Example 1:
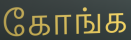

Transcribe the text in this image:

கோங்க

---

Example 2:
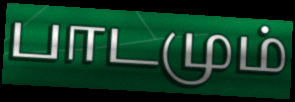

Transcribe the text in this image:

பாடமும்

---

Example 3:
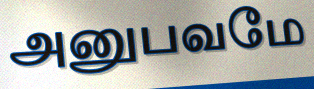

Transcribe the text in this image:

அனுபவமே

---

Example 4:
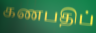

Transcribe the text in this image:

கணபதிப்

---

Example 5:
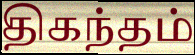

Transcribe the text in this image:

திகந்தம்